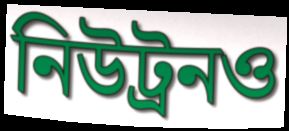
নিউট্রনও